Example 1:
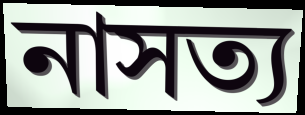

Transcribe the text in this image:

নাসত্য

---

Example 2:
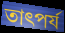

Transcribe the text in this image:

তাৎপর্য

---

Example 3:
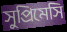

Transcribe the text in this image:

সুপ্রিমেসি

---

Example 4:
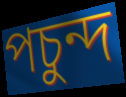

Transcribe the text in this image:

পচুন্দ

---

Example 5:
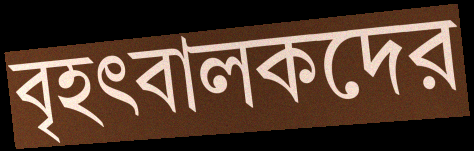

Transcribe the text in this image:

বৃহৎবালকদের